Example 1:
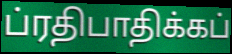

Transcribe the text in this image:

ப்ரதிபாதிக்கப்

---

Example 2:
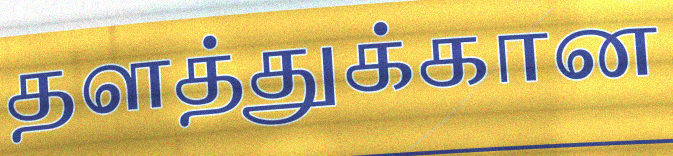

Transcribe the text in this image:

தளத்துக்கான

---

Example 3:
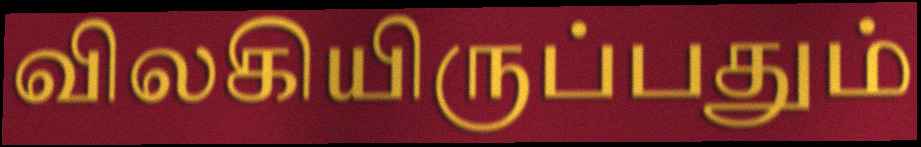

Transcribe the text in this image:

விலகியிருப்பதும்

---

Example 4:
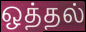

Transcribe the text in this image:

ஒத்தல்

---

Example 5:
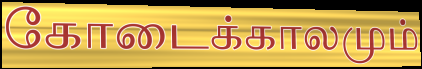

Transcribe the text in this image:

கோடைக்காலமும்